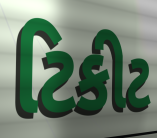
ટિકીટ